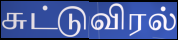
சுட்டுவிரல்